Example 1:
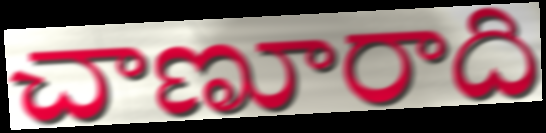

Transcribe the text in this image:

చాణూరాది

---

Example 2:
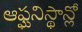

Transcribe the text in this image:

ఆఫ్ఘనిస్థాన్లో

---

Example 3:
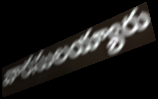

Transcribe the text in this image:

వారసులయ్యారు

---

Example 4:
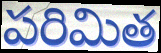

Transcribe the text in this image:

పరిమిత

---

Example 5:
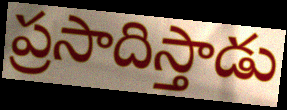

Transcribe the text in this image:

ప్రసాదిస్తాడు